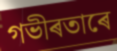
গভীৰতাৰে